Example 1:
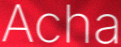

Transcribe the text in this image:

Acha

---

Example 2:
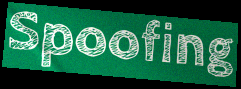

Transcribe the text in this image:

Spoofing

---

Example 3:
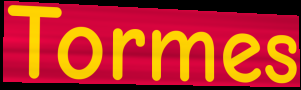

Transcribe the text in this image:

Tormes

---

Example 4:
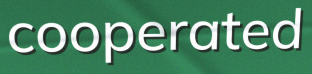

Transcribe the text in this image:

cooperated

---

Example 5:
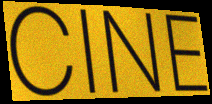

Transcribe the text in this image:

CINE